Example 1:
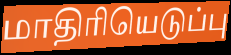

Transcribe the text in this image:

மாதிரியெடுப்பு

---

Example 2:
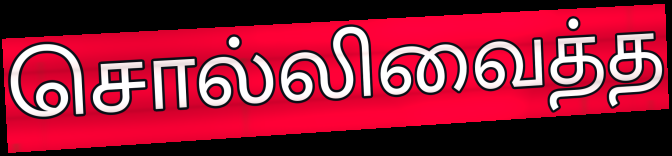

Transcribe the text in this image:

சொல்லிவைத்த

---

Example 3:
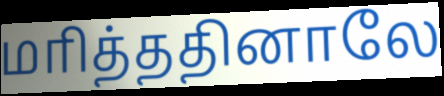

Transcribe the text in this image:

மரித்ததினாலே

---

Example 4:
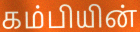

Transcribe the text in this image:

கம்பியின்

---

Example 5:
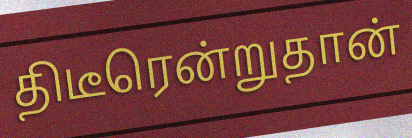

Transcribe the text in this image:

திடீரென்றுதான்